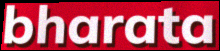
bharata